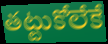
తట్టుకోలేకే